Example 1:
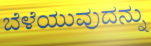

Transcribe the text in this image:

ಬೆಳೆಯುವುದನ್ನು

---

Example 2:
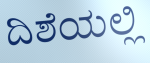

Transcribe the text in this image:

ದಿಶೆಯಲ್ಲಿ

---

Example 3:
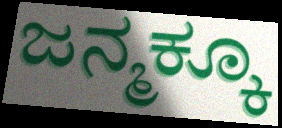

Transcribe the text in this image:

ಜನ್ಮಕ್ಕೂ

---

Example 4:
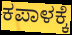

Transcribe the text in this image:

ಕಪಾಳಕ್ಕೆ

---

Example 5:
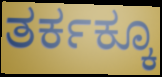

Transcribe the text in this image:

ತರ್ಕಕ್ಕೂ